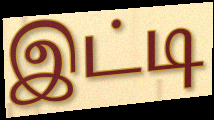
இட்டி